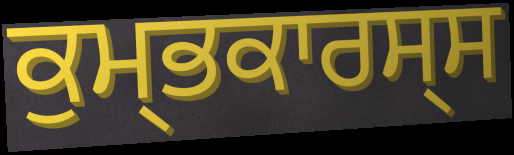
ਕੁਮ੍ਭਕਾਰਸ੍ਸ